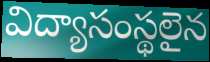
విద్యాసంస్థలైన